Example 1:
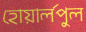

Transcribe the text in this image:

হোয়ার্লপুল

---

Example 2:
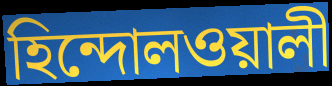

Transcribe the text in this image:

হিন্দোলওয়ালী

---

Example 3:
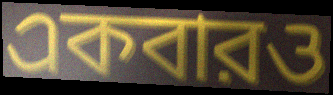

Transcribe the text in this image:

একবারও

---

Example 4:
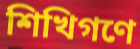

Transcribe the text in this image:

শিখিগণে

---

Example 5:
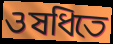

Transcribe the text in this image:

ওষধিতে